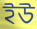
ইউ